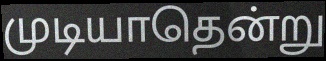
முடியாதென்று